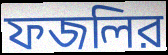
ফজলির